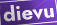
dievu